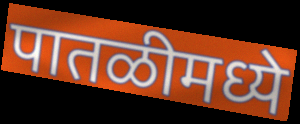
पातळीमध्ये